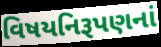
વિષયનિરૂપણનાં